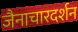
जैनाचारदर्शन